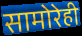
सामोरेही